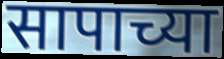
सापाच्या